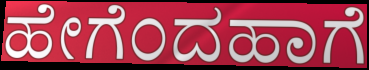
ಹೇಗೆಂದಹಾಗೆ